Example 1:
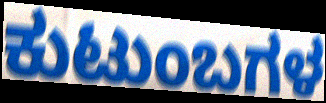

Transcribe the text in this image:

ಕುಟುಂಬಗಳ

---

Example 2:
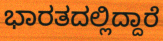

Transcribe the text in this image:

ಭಾರತದಲ್ಲಿದ್ದಾರೆ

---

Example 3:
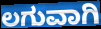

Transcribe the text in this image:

ಲಗುವಾಗಿ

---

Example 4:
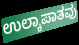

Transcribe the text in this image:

ಉಲ್ಕಾಪಾತವು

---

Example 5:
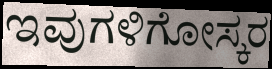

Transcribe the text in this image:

ಇವುಗಳಿಗೋಸ್ಕರ